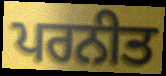
ਪਰਨੀਤ